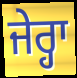
ਜੇਰ੍ਹਾ